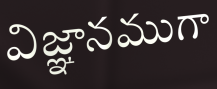
విజ్ఞానముగా